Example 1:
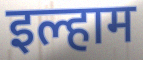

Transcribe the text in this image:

इल्हाम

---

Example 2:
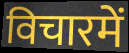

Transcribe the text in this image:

विचारमें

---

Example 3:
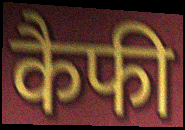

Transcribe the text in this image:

कैफी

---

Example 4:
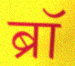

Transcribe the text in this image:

ब्रॉ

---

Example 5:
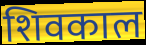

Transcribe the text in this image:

शिवकाल